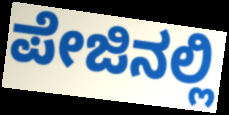
ಪೇಜಿನಲ್ಲಿ